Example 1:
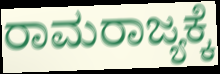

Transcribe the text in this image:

ರಾಮರಾಜ್ಯಕ್ಕೆ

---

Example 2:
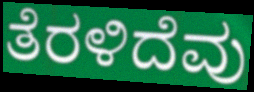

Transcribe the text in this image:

ತೆರಳಿದೆವು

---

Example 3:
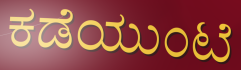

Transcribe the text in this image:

ಕಡೆಯುಂಟೆ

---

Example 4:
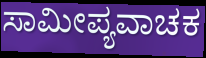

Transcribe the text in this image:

ಸಾಮೀಪ್ಯವಾಚಕ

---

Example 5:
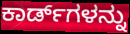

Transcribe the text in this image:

ಕಾರ್ಡ್‌ಗಳನ್ನು